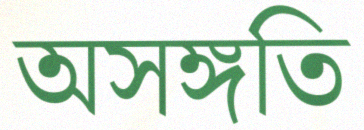
অসঙ্গতি